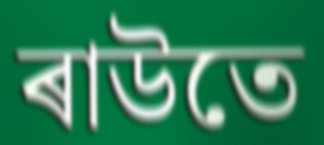
ৰাউতে